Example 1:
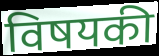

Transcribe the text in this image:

विषयकी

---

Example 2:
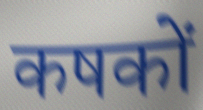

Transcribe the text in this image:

कषकों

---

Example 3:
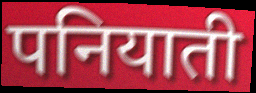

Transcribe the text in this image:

पनियाती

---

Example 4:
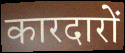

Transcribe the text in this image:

कारदारों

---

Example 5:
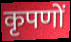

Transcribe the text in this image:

कृपणों